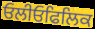
ਓਲੀਓਫਿਲਿਕ